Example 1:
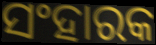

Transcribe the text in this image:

ସଂହାରକ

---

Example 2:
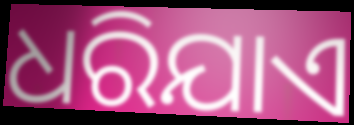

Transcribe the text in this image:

ଧରିଯାଏ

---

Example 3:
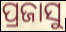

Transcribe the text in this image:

ପ୍ରଜାସୁ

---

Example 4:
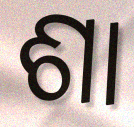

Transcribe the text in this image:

ଶା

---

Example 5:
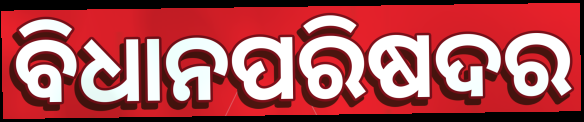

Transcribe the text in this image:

ବିଧାନପରିଷଦର